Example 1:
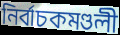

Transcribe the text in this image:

নির্বাচকমণ্ডলী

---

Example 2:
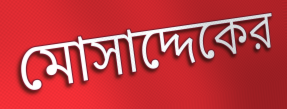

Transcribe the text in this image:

মোসাদ্দেকের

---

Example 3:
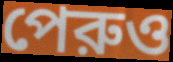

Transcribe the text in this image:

পেরুও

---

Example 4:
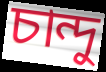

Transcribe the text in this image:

চান্দু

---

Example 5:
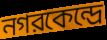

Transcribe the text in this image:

নগরকেন্দ্রে